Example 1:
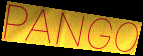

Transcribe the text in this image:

PANGO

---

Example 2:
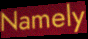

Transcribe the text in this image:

Namely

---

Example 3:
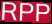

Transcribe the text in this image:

RPP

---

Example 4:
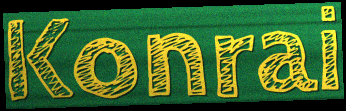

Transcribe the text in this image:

Konrai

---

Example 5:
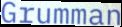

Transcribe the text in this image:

Grumman